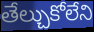
తేల్చుకోలేని